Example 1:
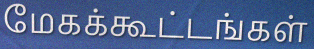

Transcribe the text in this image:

மேகக்கூட்டங்கள்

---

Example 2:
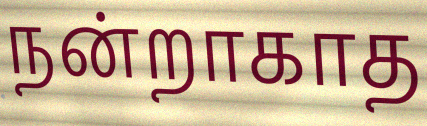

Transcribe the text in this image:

நன்றாகாத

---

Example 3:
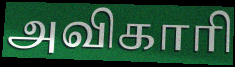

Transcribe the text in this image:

அவிகாரி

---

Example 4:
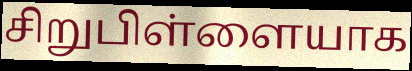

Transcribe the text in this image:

சிறுபிள்ளையாக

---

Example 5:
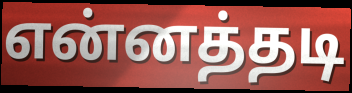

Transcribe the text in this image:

என்னத்தடி